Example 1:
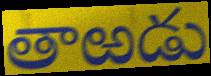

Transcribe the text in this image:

తాఱడు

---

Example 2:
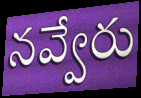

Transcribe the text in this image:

నవ్వేరు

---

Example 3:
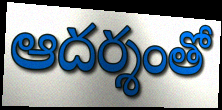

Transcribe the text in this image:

ఆదర్శంతో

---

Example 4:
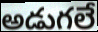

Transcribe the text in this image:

అడుగలే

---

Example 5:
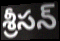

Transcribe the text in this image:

శ్రీసన్